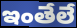
ఇంతేలే